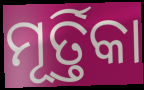
ମୂର୍ତ୍ତିକା